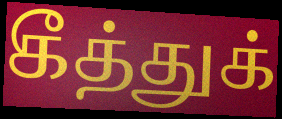
கீத்துக்